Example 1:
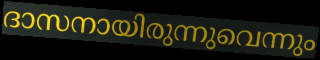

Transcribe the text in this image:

ദാസനായിരുന്നുവെന്നും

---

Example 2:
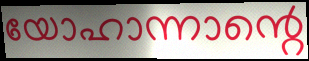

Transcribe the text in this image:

യോഹാന്നാന്റെ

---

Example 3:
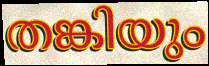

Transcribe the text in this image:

തങ്കിയും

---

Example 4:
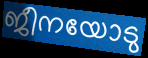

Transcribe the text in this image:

ജീനയോടു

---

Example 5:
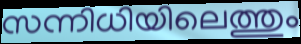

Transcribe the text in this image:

സന്നിധിയിലെത്തും